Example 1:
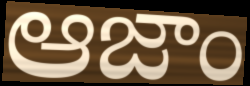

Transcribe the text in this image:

ఆజాం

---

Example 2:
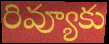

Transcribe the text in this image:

రివ్యూకు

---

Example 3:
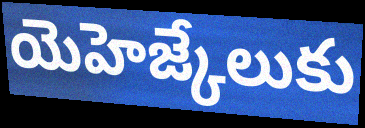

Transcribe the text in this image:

యెహెజ్కేలుకు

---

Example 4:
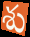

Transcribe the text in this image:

శు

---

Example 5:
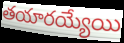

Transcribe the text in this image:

తయారయ్యేయి